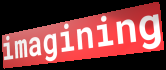
imagining